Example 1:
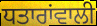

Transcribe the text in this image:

ਧਤਾਰਾਂਵਾਲੀ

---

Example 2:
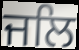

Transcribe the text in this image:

ਜਲਿ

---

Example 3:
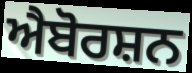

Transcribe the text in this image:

ਐਬੋਰਸ਼ਨ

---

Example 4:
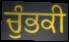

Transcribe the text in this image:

ਚੁੰਭਕੀ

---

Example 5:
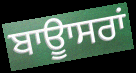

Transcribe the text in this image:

ਬਾਊਾਸਰਾਂ